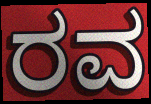
ರವ